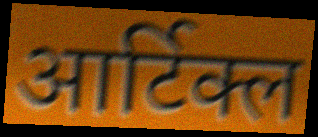
आर्टिक्ल